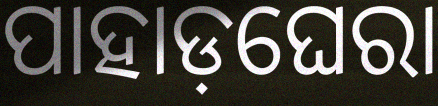
ପାହାଡ଼ଘେରା